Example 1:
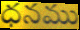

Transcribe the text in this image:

ధనము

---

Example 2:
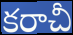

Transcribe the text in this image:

కరాచీ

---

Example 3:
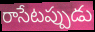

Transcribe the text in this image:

రాసేటప్పుడు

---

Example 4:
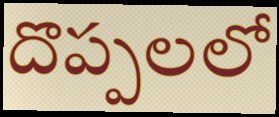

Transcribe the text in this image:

దొప్పలలో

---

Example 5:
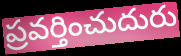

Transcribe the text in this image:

ప్రవర్తించుదురు